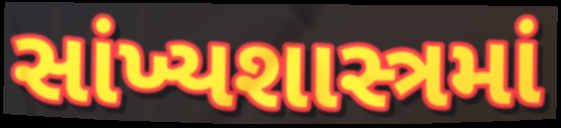
સાંખ્યશાસ્ત્રમાં